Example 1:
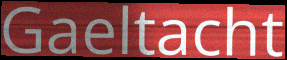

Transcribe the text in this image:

Gaeltacht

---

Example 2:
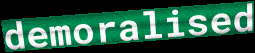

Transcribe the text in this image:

demoralised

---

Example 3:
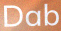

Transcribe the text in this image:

Dab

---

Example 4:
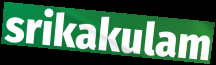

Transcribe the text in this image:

srikakulam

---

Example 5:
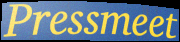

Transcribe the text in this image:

Pressmeet